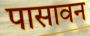
पासावन